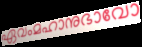
ഏവംമഹാനുഭാവോ